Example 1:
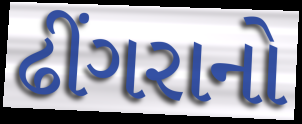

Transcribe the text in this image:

ઢીંગરાનો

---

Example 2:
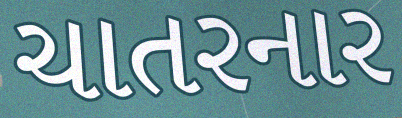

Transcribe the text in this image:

ચાતરનાર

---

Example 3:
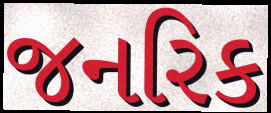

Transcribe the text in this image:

જનરિક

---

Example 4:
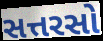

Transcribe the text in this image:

સત્તરસો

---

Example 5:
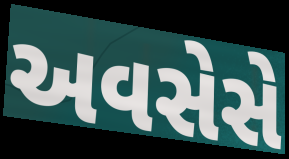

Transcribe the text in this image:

અવસેસે